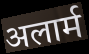
अलार्म